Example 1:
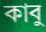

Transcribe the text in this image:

কাবু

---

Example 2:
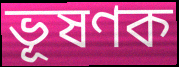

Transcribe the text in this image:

ভূষণক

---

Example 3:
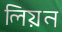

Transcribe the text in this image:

লিয়ন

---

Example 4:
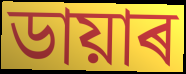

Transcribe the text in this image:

ডায়াৰ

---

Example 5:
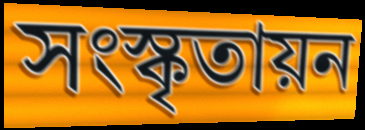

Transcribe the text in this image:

সংস্কৃতায়ন